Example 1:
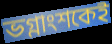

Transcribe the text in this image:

ভগ্নাংশকেই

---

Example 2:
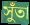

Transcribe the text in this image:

সুঁতা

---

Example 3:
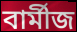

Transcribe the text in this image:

বাৰ্মীজ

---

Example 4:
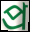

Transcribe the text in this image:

প্ৰ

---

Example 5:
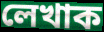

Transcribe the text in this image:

লেখাক